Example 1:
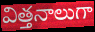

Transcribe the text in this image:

విత్తనాలుగా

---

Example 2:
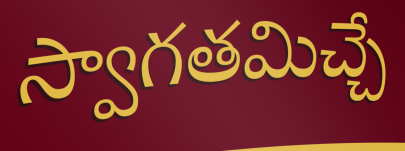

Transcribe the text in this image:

స్వాగతమిచ్చే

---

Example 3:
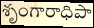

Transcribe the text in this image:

శృంగారాధిపా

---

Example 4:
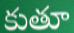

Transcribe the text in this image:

కుతూ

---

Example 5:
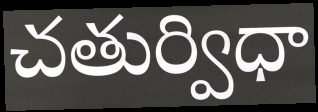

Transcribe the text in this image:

చతుర్విధా